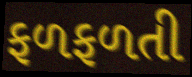
ફળફળતી